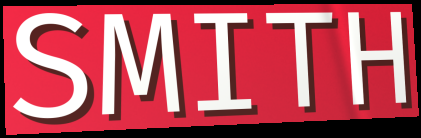
SMITH